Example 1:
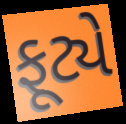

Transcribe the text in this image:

ફૂટ્યે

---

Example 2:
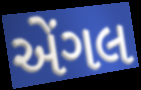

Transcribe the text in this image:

એંગલ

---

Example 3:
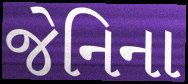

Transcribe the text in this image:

જેનિના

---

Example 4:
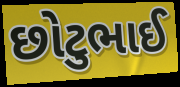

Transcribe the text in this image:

છોટુભાઈ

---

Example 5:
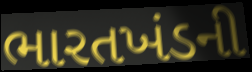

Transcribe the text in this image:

ભારતખંડની